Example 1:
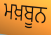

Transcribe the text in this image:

ਮਖ਼ਬੂਨ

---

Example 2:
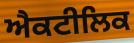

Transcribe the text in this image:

ਐਕਟੀਲਿਕ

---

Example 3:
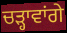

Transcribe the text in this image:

ਚੜ੍ਹਾਵਾਂਗੇ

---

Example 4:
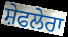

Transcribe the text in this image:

ਸ਼ੇਫਲੇਰਾ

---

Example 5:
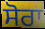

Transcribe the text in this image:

ਸੋਰਾ